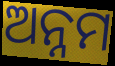
ଅନ୍ନମ